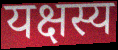
यक्षस्य